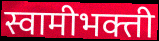
स्वामीभक्ती